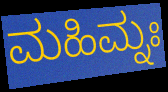
ಮಹಿಮ್ನಃ